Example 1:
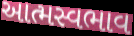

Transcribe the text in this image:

આત્મસ્વભાવ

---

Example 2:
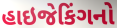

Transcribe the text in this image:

હાઇજેકિંગનો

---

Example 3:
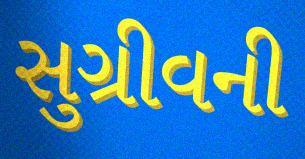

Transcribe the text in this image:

સુગ્રીવની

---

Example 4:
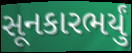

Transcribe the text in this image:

સૂનકારભર્યું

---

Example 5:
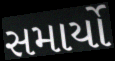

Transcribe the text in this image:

સમાર્યો